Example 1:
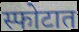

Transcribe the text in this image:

स्फोटात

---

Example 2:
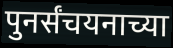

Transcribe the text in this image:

पुनर्संचयनाच्या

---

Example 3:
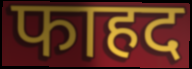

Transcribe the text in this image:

फाहद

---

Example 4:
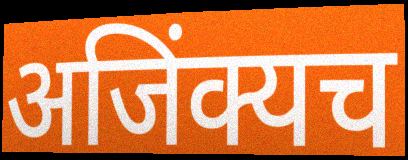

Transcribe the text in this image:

अजिंक्यच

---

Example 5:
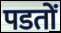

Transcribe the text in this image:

पडतों